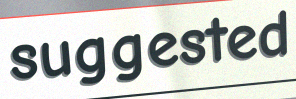
suggested